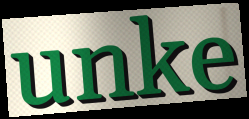
unke